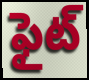
ఫైట్